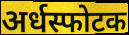
अर्धस्फोटक